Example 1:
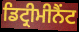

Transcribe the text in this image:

ਡਿਟ੍ਰੀਮੀਨੈਂਟ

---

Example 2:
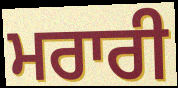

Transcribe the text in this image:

ਮਰਾਰੀ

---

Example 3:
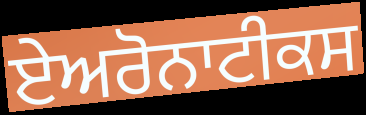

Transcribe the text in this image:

ਏਅਰੋਨਾਟੀਕਸ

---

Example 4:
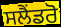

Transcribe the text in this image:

ਸਲੈਂਡਰੋ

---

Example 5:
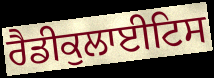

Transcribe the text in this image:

ਰੈਡੀਕੁਲਾਈਟਿਸ